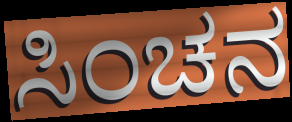
ಸಿಂಚನ